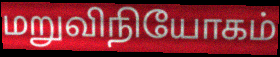
மறுவிநியோகம்